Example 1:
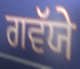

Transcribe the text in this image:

ਗਵੱਯੇ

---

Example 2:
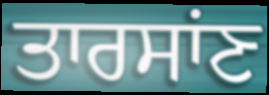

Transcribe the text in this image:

ਤਾਰਸਾਂਣ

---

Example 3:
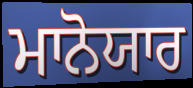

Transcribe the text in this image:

ਮਾਨੋਯਾਰ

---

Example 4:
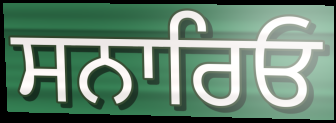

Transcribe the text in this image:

ਸਨਾਰਿਓ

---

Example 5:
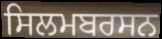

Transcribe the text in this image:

ਸਿਲਮਬਰਸਨ